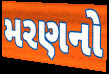
મરણનો